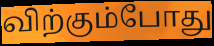
விற்கும்போது